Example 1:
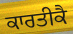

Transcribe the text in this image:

ਕਾਰਤੀਕੈ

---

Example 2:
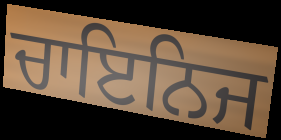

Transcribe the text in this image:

ਚਾਇਨਿਜ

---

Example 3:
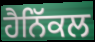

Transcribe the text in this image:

ਹੈਨਿੱਕਲ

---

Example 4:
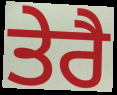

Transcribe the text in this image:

ਤੇਰੈ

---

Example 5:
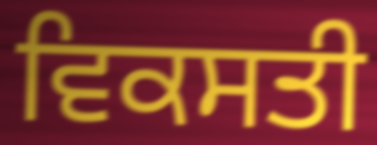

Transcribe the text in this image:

ਵਿਕਸਤੀ